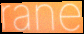
rane